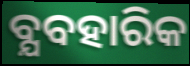
ବ୍ଯବହାରିକ